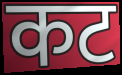
कट